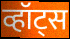
व्हॉट्स